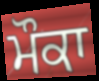
ਮੌਕਾ